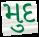
મુદ